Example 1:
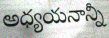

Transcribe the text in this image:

అధ్యయనాన్నీ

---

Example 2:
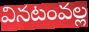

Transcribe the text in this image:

వినటంవల్ల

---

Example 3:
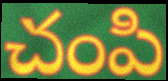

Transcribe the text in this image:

చంపి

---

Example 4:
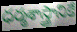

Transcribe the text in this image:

ధర్మశాస్త్రానికే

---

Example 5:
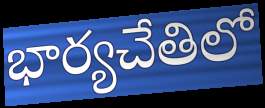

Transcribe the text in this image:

భార్యచేతిలో